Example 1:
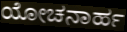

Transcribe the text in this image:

ಯೋಚನಾರ್ಹ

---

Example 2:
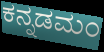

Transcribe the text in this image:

ಕನ್ನಡಮಂ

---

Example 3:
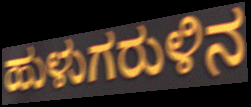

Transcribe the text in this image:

ಹುಳುಗರುಳಿನ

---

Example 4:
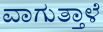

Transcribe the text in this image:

ವಾಗುತ್ತಾಳೆ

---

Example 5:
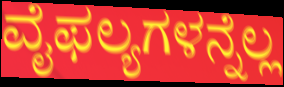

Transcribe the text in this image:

ವೈಫಲ್ಯಗಳನ್ನೆಲ್ಲ